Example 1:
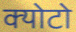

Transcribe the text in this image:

क्‍योटो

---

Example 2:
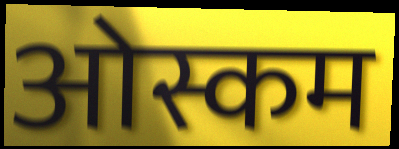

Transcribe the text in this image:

ओस्कम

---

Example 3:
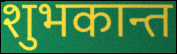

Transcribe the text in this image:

शुभकान्त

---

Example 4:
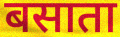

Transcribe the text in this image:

बसाता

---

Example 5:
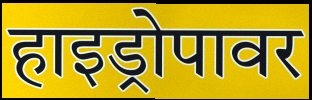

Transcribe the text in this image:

हाइड्रोपावर